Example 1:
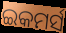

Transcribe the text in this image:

ଇକମର୍ସ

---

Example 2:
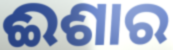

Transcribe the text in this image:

ଈଶାର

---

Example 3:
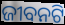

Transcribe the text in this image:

ଜୀବନଟି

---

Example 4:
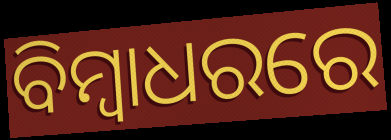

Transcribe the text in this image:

ବିମ୍ୱାଧରରେ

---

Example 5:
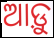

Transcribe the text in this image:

ଆଡ଼ୁ